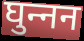
घुन्नन